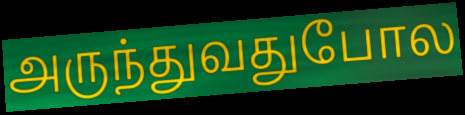
அருந்துவதுபோல